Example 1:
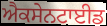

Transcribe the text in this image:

ਐਕਸੇਨਟਾਈਡ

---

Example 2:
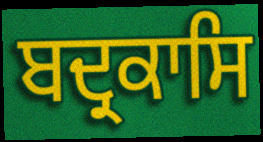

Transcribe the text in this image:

ਬਦ੍ਰਕਾਸਿ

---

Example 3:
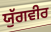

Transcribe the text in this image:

ਯੁੱਗਵੀਰ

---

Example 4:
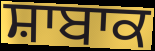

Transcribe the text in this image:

ਸ਼ਾਬਾਕ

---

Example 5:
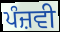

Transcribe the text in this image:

ਪੰਜ਼ਵੀ